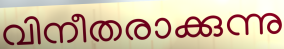
വിനീതരാക്കുന്നു